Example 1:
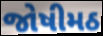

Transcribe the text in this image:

જોષીમઠ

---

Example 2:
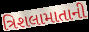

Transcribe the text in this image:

ત્રિશલામાતાની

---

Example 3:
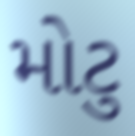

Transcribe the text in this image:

મોટુ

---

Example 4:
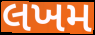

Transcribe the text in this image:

લખમ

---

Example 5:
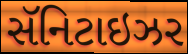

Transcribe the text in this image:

સૅનિટાઇઝર